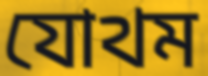
যোথম